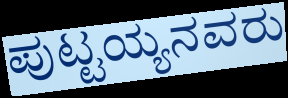
ಪುಟ್ಟಯ್ಯನವರು